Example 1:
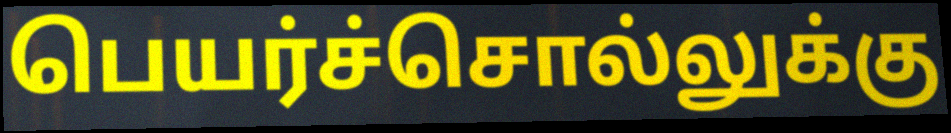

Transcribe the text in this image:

பெயர்ச்சொல்லுக்கு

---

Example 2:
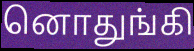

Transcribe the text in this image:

னொதுங்கி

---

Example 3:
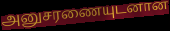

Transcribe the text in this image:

அனுசரணையுடனான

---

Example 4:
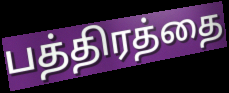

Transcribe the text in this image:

பத்திரத்தை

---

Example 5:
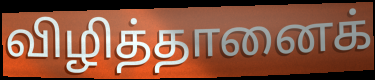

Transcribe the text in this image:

விழித்தானைக்